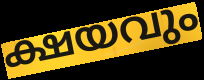
ക്ഷയവും